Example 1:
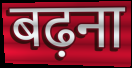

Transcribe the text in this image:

बढ़ना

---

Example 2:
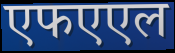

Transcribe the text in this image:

एफएएल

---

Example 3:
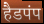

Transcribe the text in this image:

हैडपंप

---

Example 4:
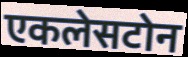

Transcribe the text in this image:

एकलेसटोन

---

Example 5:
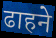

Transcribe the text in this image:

ढाहने